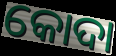
କୋଦା